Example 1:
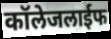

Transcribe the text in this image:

कॉलेजलाईफ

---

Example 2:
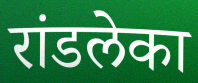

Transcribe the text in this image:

रांडलेका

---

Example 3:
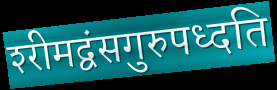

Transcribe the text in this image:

श्रीमद्वंसगुरुपध्दति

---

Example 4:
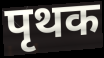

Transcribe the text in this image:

पृथक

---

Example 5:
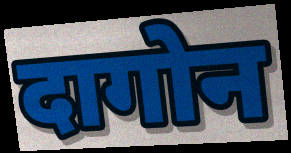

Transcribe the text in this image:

दागोन